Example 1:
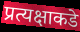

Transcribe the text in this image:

प्रत्यक्षाकडे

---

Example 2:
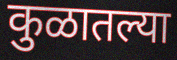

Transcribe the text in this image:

कुळातल्या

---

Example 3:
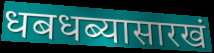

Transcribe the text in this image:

धबधब्यासारखं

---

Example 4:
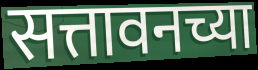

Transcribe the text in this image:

सत्तावनच्या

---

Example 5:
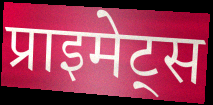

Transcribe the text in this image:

प्राइमेट्स